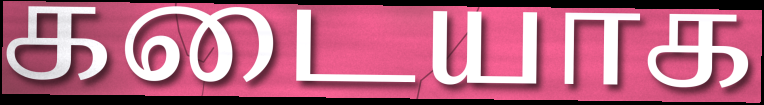
கடையாக